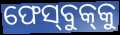
ଫେସ୍‌ବୁକ୍‌କୁ